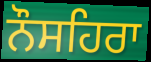
ਨੌਸਹਿਰਾ